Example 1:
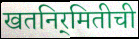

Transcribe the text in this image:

खतनिर्मितीची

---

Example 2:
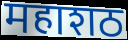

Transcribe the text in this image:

महाशठ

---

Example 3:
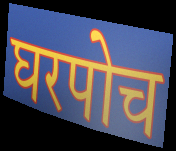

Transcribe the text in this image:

घरपोच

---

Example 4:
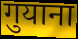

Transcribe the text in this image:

गुयाना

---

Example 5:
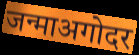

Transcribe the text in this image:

जन्माअगोदर